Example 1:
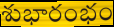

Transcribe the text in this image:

శుభారంభం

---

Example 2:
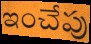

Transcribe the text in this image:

ఇంచేపు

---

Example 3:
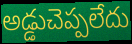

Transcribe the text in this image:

అడ్డుచెప్పలేదు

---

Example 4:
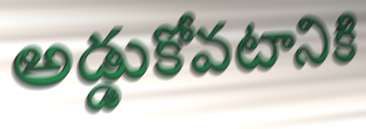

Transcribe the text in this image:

అడ్డుకోవటానికి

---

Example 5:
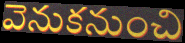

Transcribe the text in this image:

వెనుకనుంచి